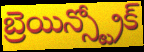
బ్రెయిన్స్ట్రోక్